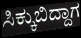
ಸಿಕ್ಕುಬಿದ್ದಾಗ